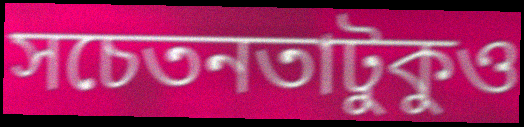
সচেতনতাটুকুও